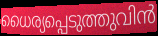
ധൈര്യപ്പെടുത്തുവിൻ